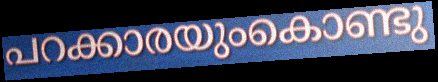
പറക്കാരയുംകൊണ്ടു